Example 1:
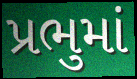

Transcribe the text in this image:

પ્રભુમાં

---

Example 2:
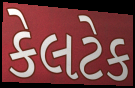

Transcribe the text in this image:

કેલટેક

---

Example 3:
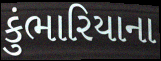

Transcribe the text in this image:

કુંભારિયાના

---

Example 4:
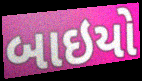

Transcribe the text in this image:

બાઇયો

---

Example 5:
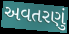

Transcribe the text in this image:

અવતરણું